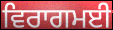
ਵਿਰਾਗਮਈ